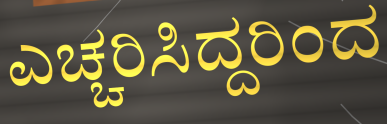
ಎಚ್ಚರಿಸಿದ್ದರಿಂದ